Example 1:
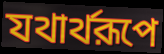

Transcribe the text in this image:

যথার্থরূপে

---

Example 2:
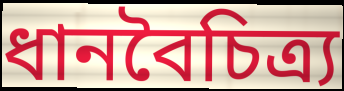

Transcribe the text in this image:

ধানবৈচিত্র্য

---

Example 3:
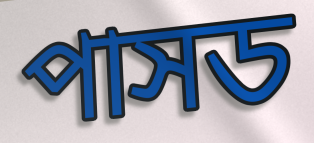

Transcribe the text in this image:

পাসড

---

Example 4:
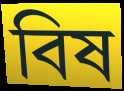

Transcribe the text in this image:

বিষ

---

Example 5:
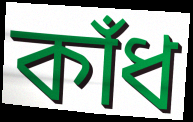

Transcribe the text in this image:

কাঁধ